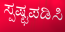
ಸ್ಪಷ್ಟಪಡಿಸಿ